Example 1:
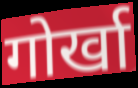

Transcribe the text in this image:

गोर्खा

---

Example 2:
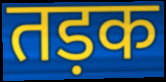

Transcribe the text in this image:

तड़क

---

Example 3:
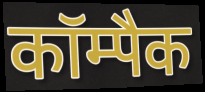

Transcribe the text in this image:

कॉम्पैक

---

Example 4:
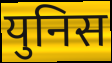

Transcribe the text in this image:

युनिस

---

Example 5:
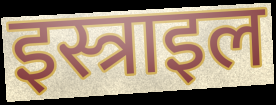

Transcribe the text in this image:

इस्त्राइल